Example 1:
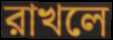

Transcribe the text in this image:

রাখলে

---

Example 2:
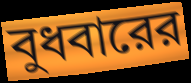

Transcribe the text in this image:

বুধবারের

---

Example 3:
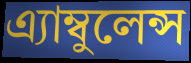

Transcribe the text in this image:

এ্যাম্বুলেন্স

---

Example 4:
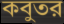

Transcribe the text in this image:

কবুতর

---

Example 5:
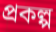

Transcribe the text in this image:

প্রকল্প